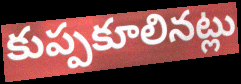
కుప్పకూలినట్లు